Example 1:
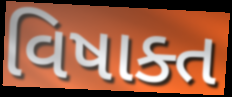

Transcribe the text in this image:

વિષાક્ત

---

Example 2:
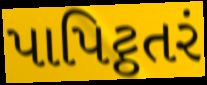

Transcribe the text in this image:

પાપિટ્ઠતરં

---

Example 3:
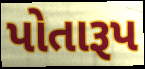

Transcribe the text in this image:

પોતારૂપ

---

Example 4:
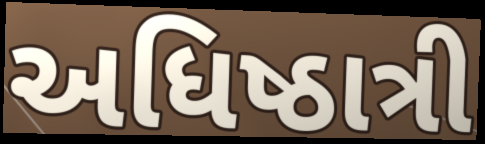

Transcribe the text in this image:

અધિષ્ઠાત્રી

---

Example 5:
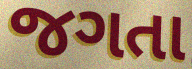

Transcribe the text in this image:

જગતા